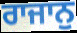
ਰਾਜਾਨੁ